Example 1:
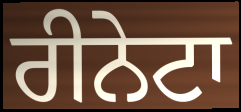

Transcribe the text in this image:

ਰੀਨੇਟਾ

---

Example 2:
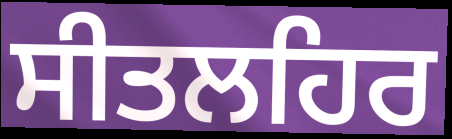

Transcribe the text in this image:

ਸੀਤਲਹਿਰ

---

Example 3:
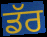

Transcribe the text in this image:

ਡੱਰ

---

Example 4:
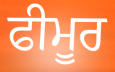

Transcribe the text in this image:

ਫੀਮੂਰ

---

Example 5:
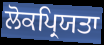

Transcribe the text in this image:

ਲੋਕਪ੍ਰਿਯਤਾ